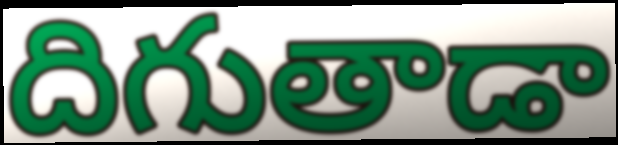
దిగుతాడా